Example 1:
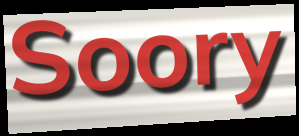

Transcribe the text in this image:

Soory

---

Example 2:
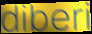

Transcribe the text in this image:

diberi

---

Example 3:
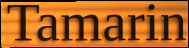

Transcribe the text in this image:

Tamarin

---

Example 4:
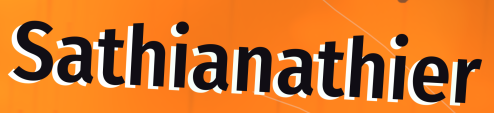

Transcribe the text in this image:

Sathianathier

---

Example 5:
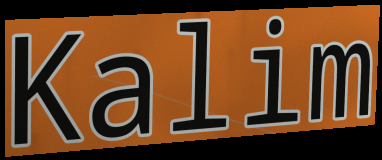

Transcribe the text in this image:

Kalim